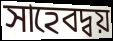
সাহেবদ্বয়